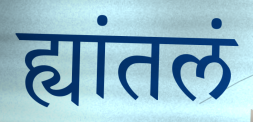
ह्यांतलं